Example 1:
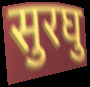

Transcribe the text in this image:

सुरघु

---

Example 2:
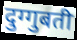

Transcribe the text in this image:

दुग्गुबती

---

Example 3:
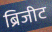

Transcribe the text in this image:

ब्रिजीट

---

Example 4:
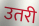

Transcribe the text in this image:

उतरी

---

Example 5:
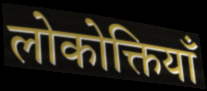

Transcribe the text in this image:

लोकोक्तियाँ